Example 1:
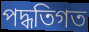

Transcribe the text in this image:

পদ্ধতিগত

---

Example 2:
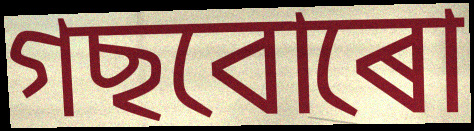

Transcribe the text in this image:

গছবোৰো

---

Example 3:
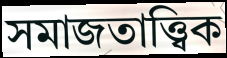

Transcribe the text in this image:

সমাজতাত্ত্বিক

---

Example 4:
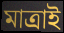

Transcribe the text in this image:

মাত্ৰাই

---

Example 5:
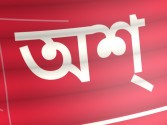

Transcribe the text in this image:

অশ্